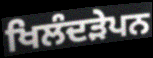
ਖਿਲੰਦੜੇਪਨ